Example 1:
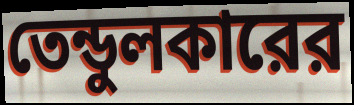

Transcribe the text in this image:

তেন্ডুলকারের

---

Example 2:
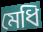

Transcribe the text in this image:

মেধি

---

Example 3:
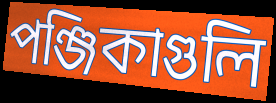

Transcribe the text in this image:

পঞ্জিকাগুলি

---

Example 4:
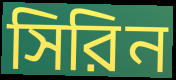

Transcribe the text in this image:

সিরিন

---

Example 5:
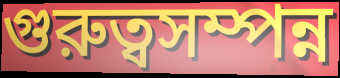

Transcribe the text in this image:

গুরুত্বসম্পন্ন